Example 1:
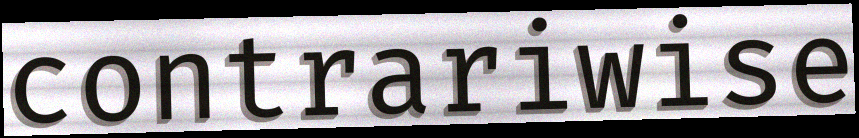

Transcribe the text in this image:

contrariwise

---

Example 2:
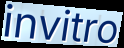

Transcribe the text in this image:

invitro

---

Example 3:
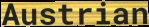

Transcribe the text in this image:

Austrian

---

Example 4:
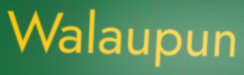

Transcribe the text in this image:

Walaupun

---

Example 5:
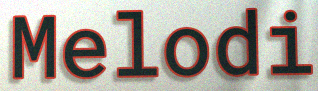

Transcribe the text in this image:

Melodi